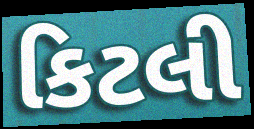
કિટલી